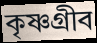
কৃষ্ণগ্রীব